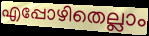
എപ്പോഴിതെല്ലാം